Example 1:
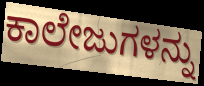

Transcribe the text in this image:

ಕಾಲೇಜುಗಳನ್ನು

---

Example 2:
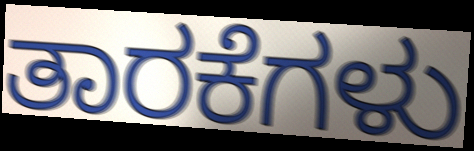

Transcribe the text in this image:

ತಾರಕೆಗಳು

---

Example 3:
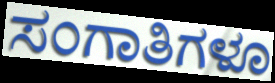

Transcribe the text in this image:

ಸಂಗಾತಿಗಳೂ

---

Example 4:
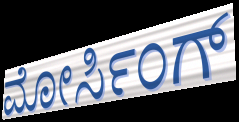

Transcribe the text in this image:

ಮೋರ್ಸಿಂಗ್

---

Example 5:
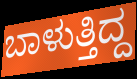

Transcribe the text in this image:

ಬಾಳುತ್ತಿದ್ದ